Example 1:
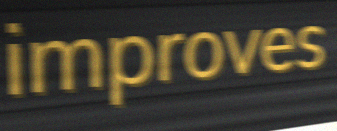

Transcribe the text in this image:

improves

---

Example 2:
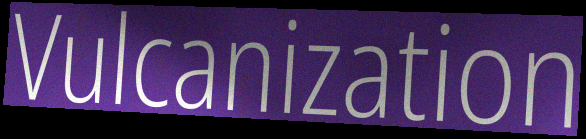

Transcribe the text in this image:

Vulcanization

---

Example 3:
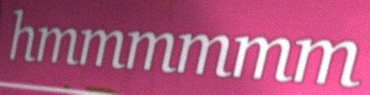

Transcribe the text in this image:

hmmmmmm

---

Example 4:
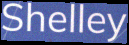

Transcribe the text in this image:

Shelley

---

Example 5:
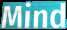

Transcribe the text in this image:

Mind